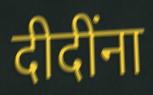
दीदींना